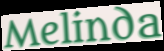
Melinda